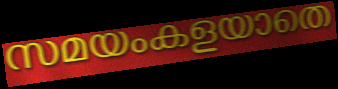
സമയംകളയാതെ